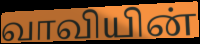
வாவியின்